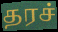
தரச்